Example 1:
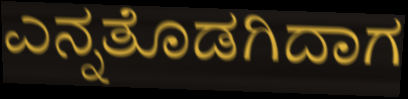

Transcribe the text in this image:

ಎನ್ನತೊಡಗಿದಾಗ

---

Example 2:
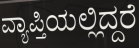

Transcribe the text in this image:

ವ್ಯಾಪ್ತಿಯಲ್ಲಿದ್ದರೆ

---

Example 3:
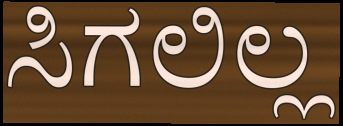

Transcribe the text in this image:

ಸಿಗಲಿಲ್ಲ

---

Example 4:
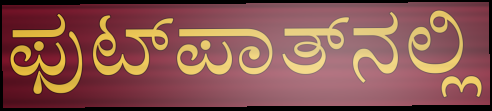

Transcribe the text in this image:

ಫುಟ್‌ಪಾತ್‌ನಲ್ಲಿ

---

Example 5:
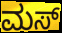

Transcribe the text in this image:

ಮಸ್